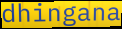
dhingana